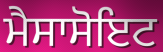
ਮੈਸਾਸੋਇਟ